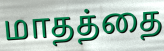
மாதத்தை